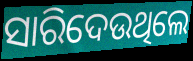
ସାରିଦେଉଥିଲେ